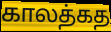
காலத்கத